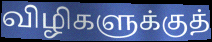
விழிகளுக்குத்